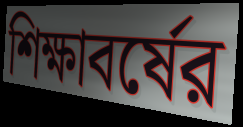
শিক্ষাবর্ষের